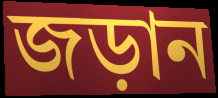
জড়ান